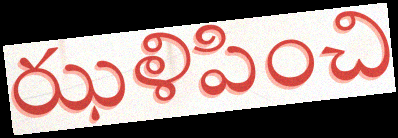
ఝళిపించి